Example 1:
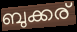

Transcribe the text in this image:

ബുക്കര്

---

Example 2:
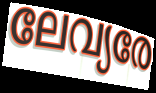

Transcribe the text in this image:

ലേവ്യരേ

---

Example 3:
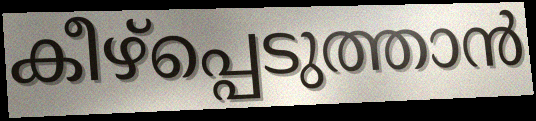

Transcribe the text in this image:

കീഴ്പ്പെടുത്താൻ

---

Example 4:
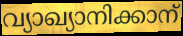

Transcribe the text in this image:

വ്യാഖ്യാനിക്കാന്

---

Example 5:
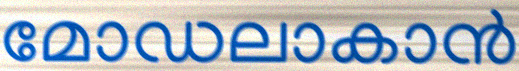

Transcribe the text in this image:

മോഡലാകാൻ